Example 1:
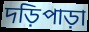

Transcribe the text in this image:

দড়িপাড়া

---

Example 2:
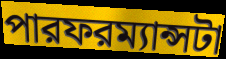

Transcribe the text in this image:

পারফরম্যান্সটা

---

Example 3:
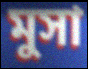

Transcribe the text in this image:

মুসা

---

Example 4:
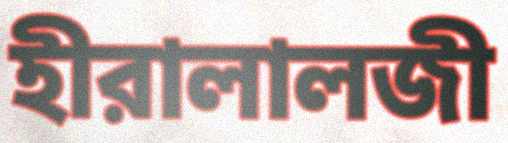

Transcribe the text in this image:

হীরালালজী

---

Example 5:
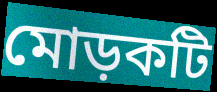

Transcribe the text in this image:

মোড়কটি